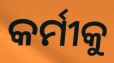
କର୍ମୀକୁ